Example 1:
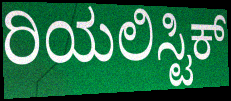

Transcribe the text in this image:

ರಿಯಲಿಸ್ಟಿಕ್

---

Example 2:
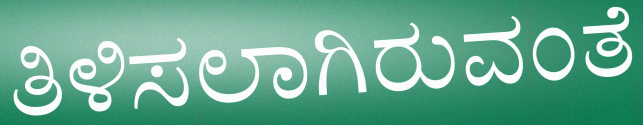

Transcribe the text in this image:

ತಿಳಿಸಲಾಗಿರುವಂತೆ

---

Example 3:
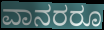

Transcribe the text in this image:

ವಾನರರೂ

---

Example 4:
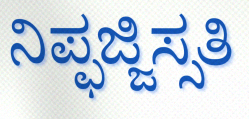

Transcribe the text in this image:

ನಿಪ್ಫಜ್ಜಿಸ್ಸತಿ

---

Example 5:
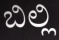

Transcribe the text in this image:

ಬಿಲ್ಲಿ